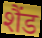
शैंड